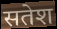
सतेश